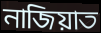
নাজিয়াত